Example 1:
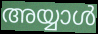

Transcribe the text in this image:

അയ്യാൾ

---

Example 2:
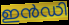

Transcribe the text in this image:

ഇൻഡി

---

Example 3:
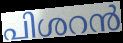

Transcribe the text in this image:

പിശറൻ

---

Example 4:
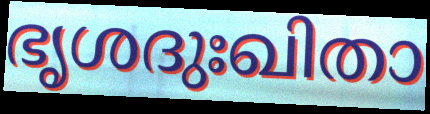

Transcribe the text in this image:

ഭൃശദുഃഖിതാ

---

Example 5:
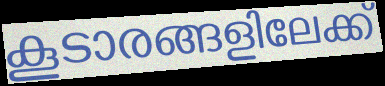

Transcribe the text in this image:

കൂടാരങ്ങളിലേക്ക്